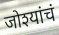
जोश्यांचं